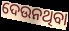
ଦେଉନଥିବା